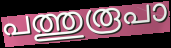
പത്തുരൂപാ